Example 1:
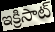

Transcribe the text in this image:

ఇక్రిసాట్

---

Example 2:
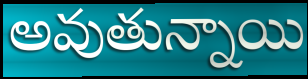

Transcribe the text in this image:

అవుతున్నాయి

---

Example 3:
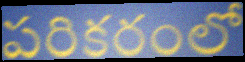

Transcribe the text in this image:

పరికరంలో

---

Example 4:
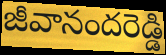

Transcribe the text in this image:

జీవానందరెడ్డి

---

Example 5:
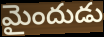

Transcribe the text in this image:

మైందుడు